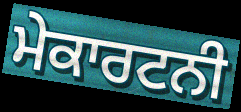
ਮੇਕਾਰਟਨੀ